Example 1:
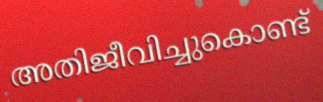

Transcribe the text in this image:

അതിജീവിച്ചുകൊണ്ട്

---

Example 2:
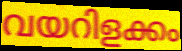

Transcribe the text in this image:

വയറിളക്കം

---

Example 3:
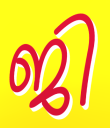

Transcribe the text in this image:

ജി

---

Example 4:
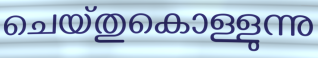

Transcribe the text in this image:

ചെയ്തുകൊള്ളുന്നു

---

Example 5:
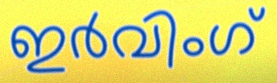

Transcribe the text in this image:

ഇർവിംഗ്